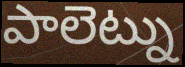
పాలెట్ను